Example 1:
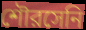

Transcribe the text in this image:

শৌরসেনি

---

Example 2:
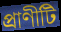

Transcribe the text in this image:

প্রাণীটি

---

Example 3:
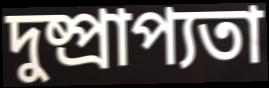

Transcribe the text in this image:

দুষ্প্রাপ্যতা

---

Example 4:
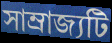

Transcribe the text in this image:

সাম্রাজ্যটি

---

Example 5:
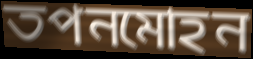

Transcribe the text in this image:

তপনমোহন